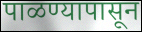
पाळण्यापासून